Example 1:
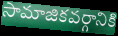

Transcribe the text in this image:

సామాజికవర్గానికి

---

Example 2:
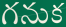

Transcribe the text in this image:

గనుక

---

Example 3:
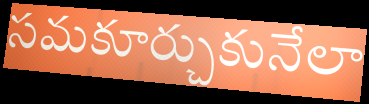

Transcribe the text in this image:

సమకూర్చుకునేలా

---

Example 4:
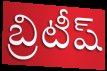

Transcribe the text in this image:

బ్రిటీష్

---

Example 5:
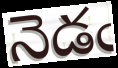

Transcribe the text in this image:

నెడఁ